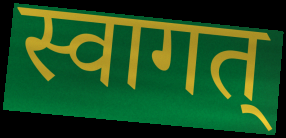
स्वागत्